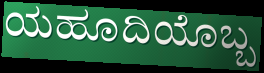
ಯಹೂದಿಯೊಬ್ಬ